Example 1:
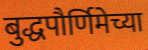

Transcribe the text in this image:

बुद्धपौर्णिमेच्या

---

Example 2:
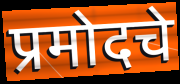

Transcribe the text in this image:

प्रमोदचे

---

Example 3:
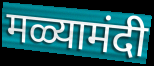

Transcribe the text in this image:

मळ्यामंदी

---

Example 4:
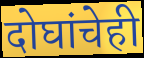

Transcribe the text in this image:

दोघांचेही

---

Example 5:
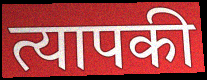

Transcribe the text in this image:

त्यापकी